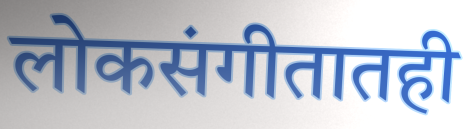
लोकसंगीतातही